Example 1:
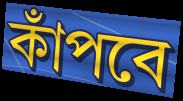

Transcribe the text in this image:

কাঁপবে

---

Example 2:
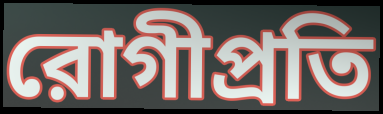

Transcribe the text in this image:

রোগীপ্রতি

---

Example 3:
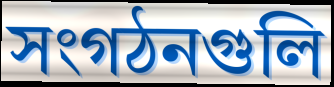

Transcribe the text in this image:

সংগঠনগুলি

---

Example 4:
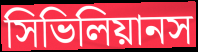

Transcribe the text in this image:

সিভিলিয়ানস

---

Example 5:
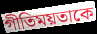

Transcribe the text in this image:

গীতিময়তাকে